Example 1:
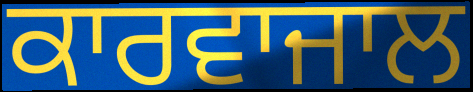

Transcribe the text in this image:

ਕਾਰਵਾਜਾਲ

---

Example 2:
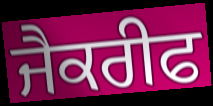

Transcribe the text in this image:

ਜੈਕਰੀਫ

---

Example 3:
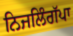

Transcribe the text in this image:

ਨਿਜਲਿੰਗੱਪਾ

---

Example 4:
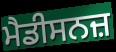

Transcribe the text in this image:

ਮੈਡੀਸਨਜ਼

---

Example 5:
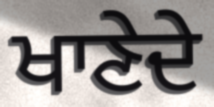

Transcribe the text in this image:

ਖਾਣੇਦੇ